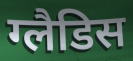
ग्लैडिस